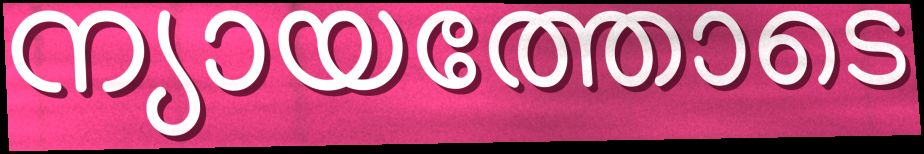
ന്യായത്തോടെ